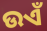
ଉଏଁ